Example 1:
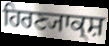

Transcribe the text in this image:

ਹਿਰਣ੍ਯਾਕ੍ਸ਼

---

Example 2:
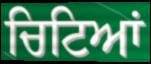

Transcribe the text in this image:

ਚਿਟਿਆਂ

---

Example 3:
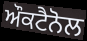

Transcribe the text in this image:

ਔਕਟੈਨੋਲ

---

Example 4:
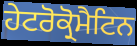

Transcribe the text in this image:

ਹੇਟਰੋਕ੍ਰੋਮੈਟਿਨ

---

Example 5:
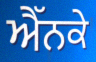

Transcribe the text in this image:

ਐੱਨਕੇ